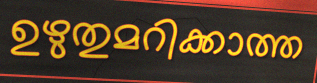
ഉഴുതുമറിക്കാത്ത